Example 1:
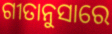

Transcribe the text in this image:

ଗୀତାନୁସାରେ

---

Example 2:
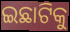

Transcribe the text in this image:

ଇଛାଟିକୁ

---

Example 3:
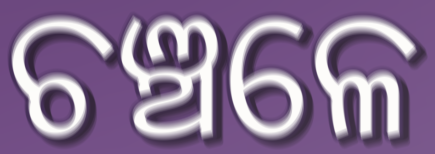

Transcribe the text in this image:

ଚଞ୍ଚଳେ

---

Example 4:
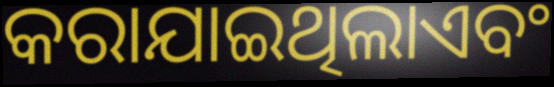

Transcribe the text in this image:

କରାଯାଇଥିଲାଏବଂ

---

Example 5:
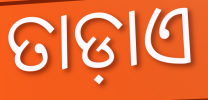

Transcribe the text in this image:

ତାଡ଼ାଏ